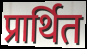
प्रार्थित